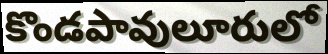
కొండపావులూరులో